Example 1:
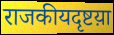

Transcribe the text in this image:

राजकीयदृष्टय़ा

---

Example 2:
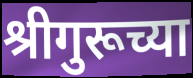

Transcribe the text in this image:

श्रीगुरूच्या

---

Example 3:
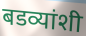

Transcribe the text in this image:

बडव्यांशी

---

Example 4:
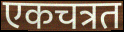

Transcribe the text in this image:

एकचत्रत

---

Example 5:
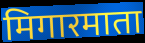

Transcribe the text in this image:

मिगारमाता